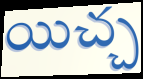
యిచ్చ